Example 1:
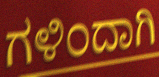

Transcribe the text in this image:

ಗಳಿಂದಾಗಿ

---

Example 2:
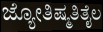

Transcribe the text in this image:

ಜ್ಯೋತಿಷ್ಮತಿತೈಲ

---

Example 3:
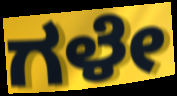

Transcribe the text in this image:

ಗಳೇ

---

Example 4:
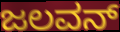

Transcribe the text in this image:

ಜಲವನ್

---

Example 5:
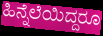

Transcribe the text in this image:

ಹಿನ್ನೆಲೆಯಿದ್ದರೂ